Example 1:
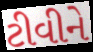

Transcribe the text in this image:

ટીવીને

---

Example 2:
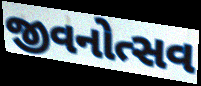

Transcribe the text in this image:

જીવનોત્સવ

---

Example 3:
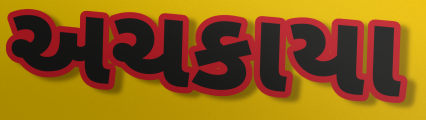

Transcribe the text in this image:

અચકાયા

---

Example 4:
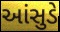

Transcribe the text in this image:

આંસુડે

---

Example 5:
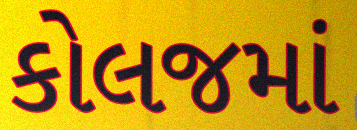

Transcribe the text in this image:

કોલજમાં